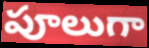
పూలుగా